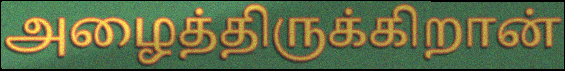
அழைத்திருக்கிறான்